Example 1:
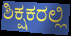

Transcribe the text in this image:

ಶಿಕ್ಷಕರಲ್ಲಿ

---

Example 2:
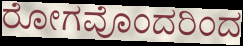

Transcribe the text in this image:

ರೋಗವೊಂದರಿಂದ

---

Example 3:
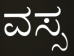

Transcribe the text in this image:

ವಸ್ಸ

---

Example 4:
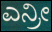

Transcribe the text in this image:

ಎನ್ರೀ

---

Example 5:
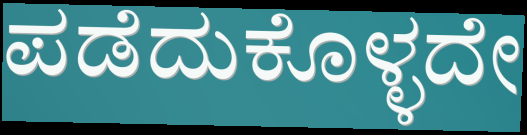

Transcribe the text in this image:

ಪಡೆದುಕೊಳ್ಳದೇ